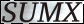
SUMX